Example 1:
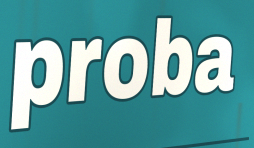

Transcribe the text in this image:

proba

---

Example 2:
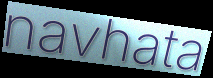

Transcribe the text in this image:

navhata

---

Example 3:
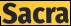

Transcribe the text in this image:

Sacra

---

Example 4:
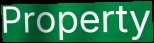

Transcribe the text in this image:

Property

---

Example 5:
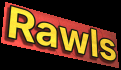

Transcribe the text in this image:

Rawls